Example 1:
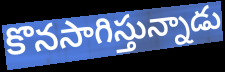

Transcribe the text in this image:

కొనసాగిస్తున్నాడు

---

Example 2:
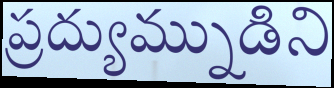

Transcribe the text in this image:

ప్రద్యుమ్నుడిని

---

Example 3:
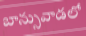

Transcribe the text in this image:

బాన్సువాడలో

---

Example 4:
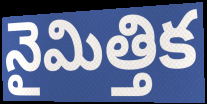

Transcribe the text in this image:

నైమిత్తిక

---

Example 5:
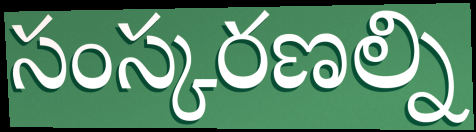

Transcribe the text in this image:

సంస్కరణల్ని